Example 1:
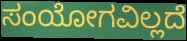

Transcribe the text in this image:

ಸಂಯೋಗವಿಲ್ಲದೆ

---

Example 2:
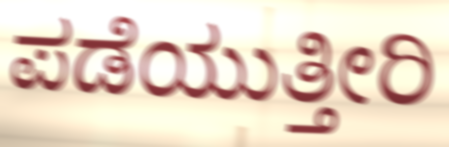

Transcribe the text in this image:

ಪಡೆಯುತ್ತೀರಿ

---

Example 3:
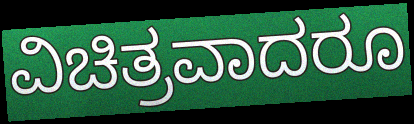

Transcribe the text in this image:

ವಿಚಿತ್ರವಾದರೂ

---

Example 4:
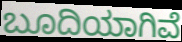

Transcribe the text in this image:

ಬೂದಿಯಾಗಿವೆ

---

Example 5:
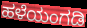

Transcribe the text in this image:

ಹಳೆಯಂಗಡಿ